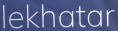
lekhatar